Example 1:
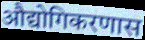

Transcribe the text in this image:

औद्योगिकरणास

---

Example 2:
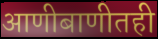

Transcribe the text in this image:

आणीबाणीतही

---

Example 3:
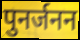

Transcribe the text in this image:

पुनर्जनन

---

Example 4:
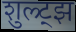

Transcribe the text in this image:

शुल्ट्झ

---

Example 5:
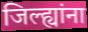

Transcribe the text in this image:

जिल्ह्यांना